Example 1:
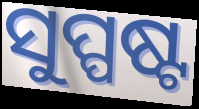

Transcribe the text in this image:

ସୁପ୍ପଷ୍ଟ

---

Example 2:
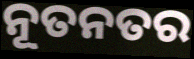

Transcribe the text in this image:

ନୂତନତର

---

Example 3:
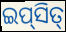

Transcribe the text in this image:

ଇପ୍‌ସିତ୍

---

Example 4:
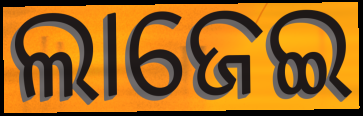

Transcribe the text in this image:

ଲାଜେଇ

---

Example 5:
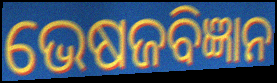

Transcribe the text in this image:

ଭେଷଜବିଜ୍ଞାନ